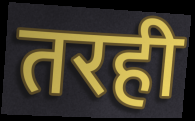
तरही